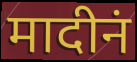
मादीनं